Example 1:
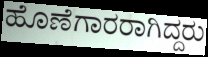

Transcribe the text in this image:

ಹೊಣೆಗಾರರಾಗಿದ್ದರು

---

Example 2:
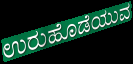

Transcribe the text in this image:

ಉರುಹೊಡೆಯುವ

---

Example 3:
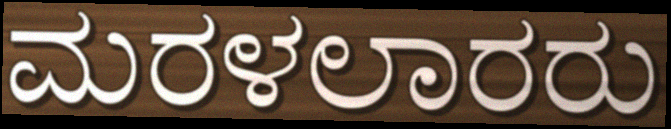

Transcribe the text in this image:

ಮರಳಲಾರರು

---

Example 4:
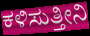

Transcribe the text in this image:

ಕಳಿಸುತ್ತೀನಿ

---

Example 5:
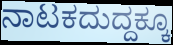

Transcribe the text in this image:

ನಾಟಕದುದ್ದಕ್ಕೂ